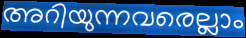
അറിയുന്നവരെല്ലാം